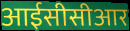
आईसीसीआर